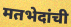
मतभेदांची